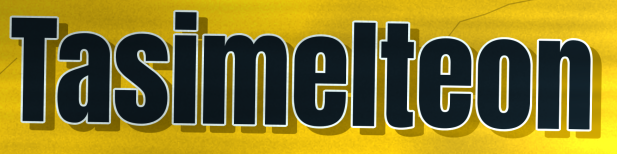
Tasimelteon